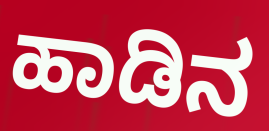
ಹಾಡಿನ